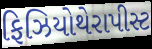
ફિઝિયોથેરાપીસ્ટ